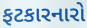
ફટકારનારો